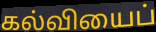
கல்வியைப்